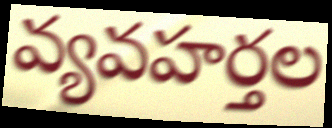
వ్యవహర్తల